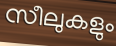
സീലുകളും